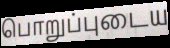
பொறுப்புடைய